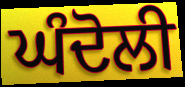
ਘੰਦੋਲੀ